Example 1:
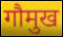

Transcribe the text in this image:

गौमुख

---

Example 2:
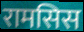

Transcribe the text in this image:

रामसिस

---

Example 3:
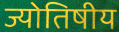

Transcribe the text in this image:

ज्योतिषीय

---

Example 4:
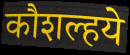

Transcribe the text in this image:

कौशल्हये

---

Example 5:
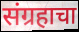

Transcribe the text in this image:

संग्रहाचा